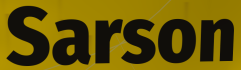
Sarson